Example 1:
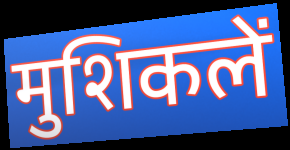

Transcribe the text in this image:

मुशिकलें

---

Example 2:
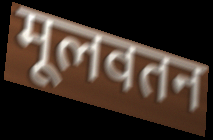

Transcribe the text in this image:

मूलवतन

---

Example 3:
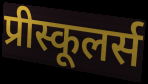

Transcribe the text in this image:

प्रीस्कूलर्स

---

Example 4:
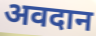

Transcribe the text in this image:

अवदान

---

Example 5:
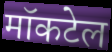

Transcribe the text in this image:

मॉकटेल